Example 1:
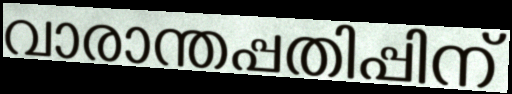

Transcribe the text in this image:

വാരാന്തപ്പതിപ്പിന്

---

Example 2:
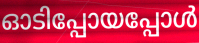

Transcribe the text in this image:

ഓടിപ്പോയപ്പോൾ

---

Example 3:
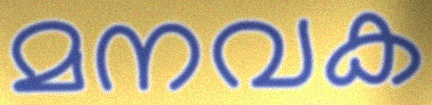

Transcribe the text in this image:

മനവക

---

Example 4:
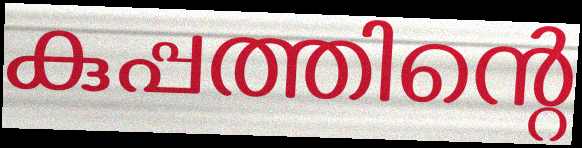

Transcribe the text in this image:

കുപ്പത്തിന്റെ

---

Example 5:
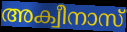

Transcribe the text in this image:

അക്വീനാസ്